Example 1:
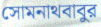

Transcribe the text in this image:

সোমনাথবাবুর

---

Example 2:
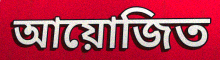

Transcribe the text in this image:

আয়োজিত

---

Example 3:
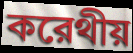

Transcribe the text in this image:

করেথীয়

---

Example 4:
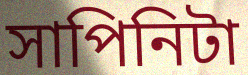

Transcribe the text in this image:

সাপিনিটা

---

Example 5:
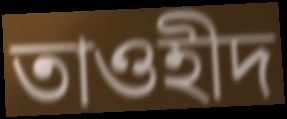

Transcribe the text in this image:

তাওহীদ